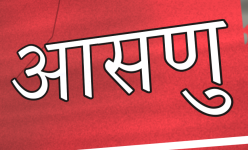
आसणु